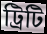
ট্রিটি